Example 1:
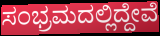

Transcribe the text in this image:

ಸಂಭ್ರಮದಲ್ಲಿದ್ದೇವೆ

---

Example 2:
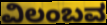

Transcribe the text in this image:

ವಿಲಂಬವ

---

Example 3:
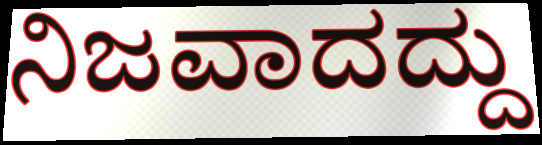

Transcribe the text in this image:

ನಿಜವಾದದ್ದು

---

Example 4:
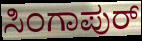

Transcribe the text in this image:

ಸಿಂಗಾಪುರ್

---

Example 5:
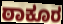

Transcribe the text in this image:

ಠಾಕೂರ